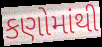
કણોમાંથી